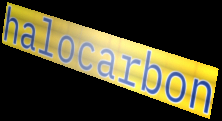
halocarbon